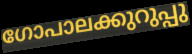
ഗോപാലക്കുറുപ്പു